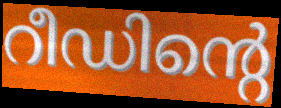
റീഡിന്റെ